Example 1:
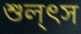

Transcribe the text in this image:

শুল্ৎস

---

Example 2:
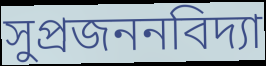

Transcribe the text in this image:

সুপ্রজননবিদ্যা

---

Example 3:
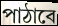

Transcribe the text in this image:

পাঠাবে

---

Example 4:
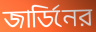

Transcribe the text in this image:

জার্ডিনের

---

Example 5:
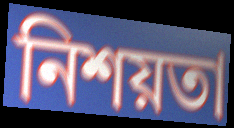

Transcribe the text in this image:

নিশয়তা